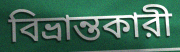
বিভ্রান্তকারী